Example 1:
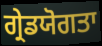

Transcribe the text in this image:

ਗ੍ਰੇਡਯੋਗਤਾ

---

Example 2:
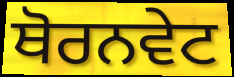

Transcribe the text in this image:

ਥੋਰਨਵੇਟ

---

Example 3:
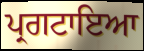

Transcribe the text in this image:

ਪ੍ਰਗਟਾਇਆ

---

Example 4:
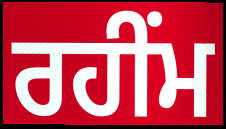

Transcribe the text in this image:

ਰਹੀਂਮ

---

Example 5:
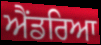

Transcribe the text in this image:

ਐਂਡਰਿਆ